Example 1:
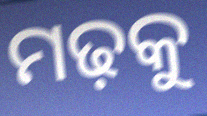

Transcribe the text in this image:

ମଢ଼କୁ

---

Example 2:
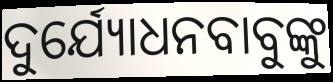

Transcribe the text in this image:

ଦୁର୍ଯ୍ୟୋଧନବାବୁଙ୍କୁ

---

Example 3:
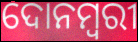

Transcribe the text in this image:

ଦୋନମ୍ବରୀ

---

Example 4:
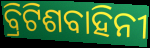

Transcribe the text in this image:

ବ୍ରିଟିଶବାହିନୀ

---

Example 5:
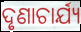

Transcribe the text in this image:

ଦୃଣାଚାର୍ଯ୍ୟ